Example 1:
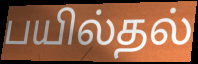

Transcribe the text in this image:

பயில்தல்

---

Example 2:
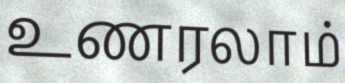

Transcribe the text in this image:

உணரலாம்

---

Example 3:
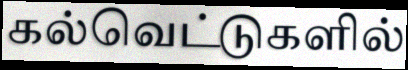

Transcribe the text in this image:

கல்வெட்டுகளில்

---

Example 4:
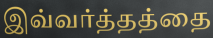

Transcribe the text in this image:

இவ்வர்த்தத்தை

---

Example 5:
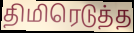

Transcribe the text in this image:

திமிரெடுத்த